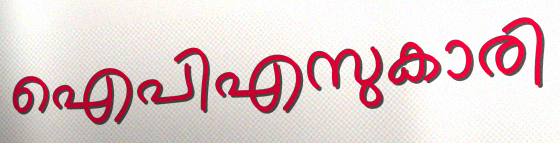
ഐപിഎസുകാരി